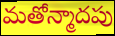
మతోన్మాదపు